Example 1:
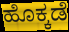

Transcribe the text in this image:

ಹೊಕ್ಕಡೆ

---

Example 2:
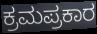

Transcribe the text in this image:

ಕ್ರಮಪ್ರಕಾರ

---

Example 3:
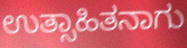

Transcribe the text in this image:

ಉತ್ಸಾಹಿತನಾಗು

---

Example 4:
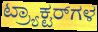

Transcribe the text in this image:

ಟ್ರ್ಯಾಕ್ಟರ್‌ಗಳ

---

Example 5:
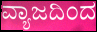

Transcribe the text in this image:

ವ್ಯಾಜದಿಂದ